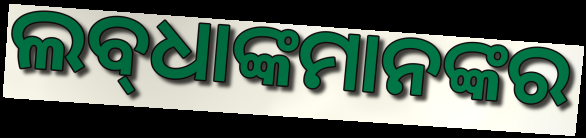
ଲବ୍‌ଧାଙ୍କମାନଙ୍କର